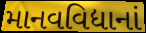
માનવવિદ્યાનાં